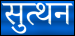
सुत्थन